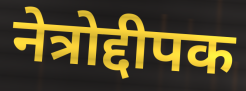
नेत्रोद्दीपक